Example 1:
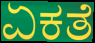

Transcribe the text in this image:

ಏಕತೆ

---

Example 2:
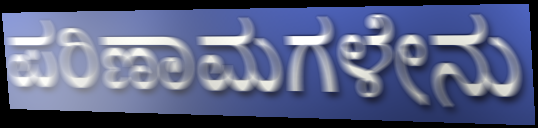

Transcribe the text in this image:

ಪರಿಣಾಮಗಳೇನು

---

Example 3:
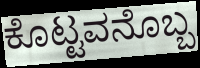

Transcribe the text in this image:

ಕೊಟ್ಟವನೊಬ್ಬ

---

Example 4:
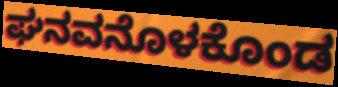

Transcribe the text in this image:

ಘನವನೊಳಕೊಂಡ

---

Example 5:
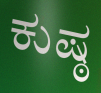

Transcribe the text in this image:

ಕುಷ್ಠ